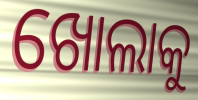
ଖୋଲାକୁ